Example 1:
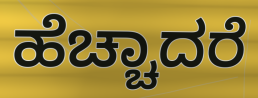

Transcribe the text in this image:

ಹೆಚ್ಚಾದರೆ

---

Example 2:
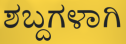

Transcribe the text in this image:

ಶಬ್ದಗಳಾಗಿ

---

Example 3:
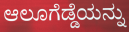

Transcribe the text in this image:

ಆಲೂಗೆಡ್ಡೆಯನ್ನು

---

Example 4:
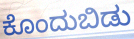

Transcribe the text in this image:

ಕೊಂದುಬಿಡು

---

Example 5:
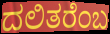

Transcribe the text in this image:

ದಲಿತರೆಂಬ